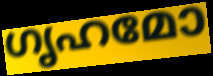
ഗൃഹമോ